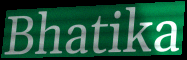
Bhatika